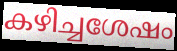
കഴിച്ചശേഷം